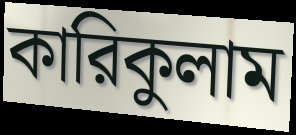
কারিকুলাম